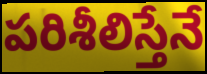
పరిశీలిస్తేనే